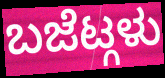
ಬಜೆಟ್ಗಳು